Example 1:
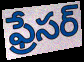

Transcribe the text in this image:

ఫ్రేసర్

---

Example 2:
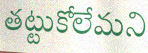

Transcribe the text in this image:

తట్టుకోలేమని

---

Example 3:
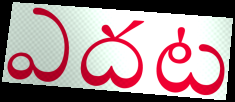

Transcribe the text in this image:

ఎదట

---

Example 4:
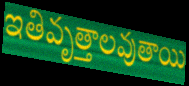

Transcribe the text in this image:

ఇతివృత్తాలవుతాయి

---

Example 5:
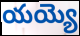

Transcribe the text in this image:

యయ్యె